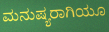
ಮನುಷ್ಯರಾಗಿಯೂ